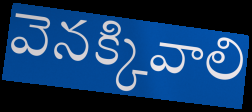
వెనక్కివాలి